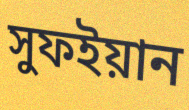
সুফইয়ান